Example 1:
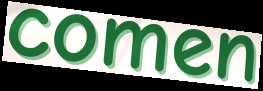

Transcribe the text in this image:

comen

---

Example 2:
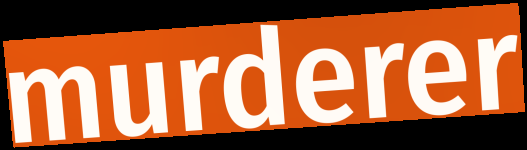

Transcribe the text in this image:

murderer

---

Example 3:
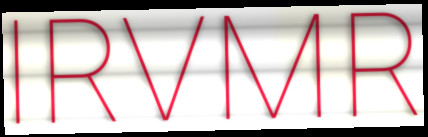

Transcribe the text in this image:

IRVMR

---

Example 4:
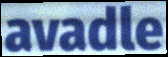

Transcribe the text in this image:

avadle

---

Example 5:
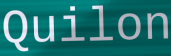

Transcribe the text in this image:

Quilon